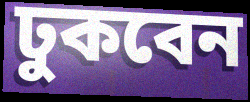
ঢুকবেন